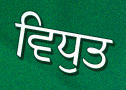
ਵਿਧੁਤ